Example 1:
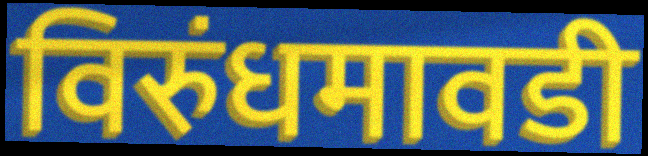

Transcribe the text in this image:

विरुंधमावडी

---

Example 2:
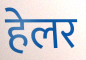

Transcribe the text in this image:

हेलर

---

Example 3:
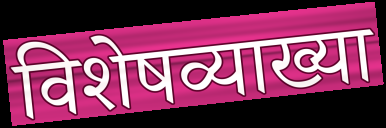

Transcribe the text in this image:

विशेषव्याख्या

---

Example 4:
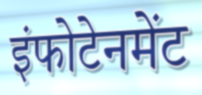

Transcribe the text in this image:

इंफोटेनमेंट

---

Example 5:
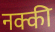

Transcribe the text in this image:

नक्की